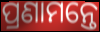
ପ୍ରଣାମନ୍ତେ